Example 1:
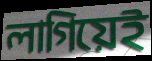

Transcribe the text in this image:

লাগিয়েই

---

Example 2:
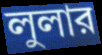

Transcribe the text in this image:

লুলার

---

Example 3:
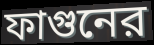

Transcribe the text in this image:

ফাগুনের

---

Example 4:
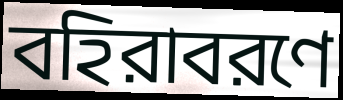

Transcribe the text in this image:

বহিরাবরণে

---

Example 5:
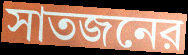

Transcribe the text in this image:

সাতজনের